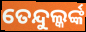
ତେନ୍ଦୁଲ୍କର୍ଙ୍କ